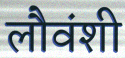
लौवंशी